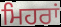
ਮਿਹਰਾਂ